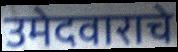
उमेदवाराचे